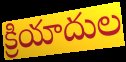
క్రియాదుల